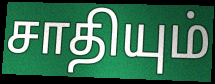
சாதியும்